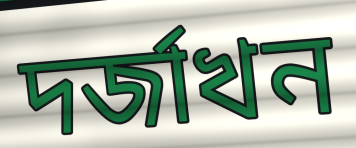
দৰ্জাখন